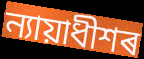
ন্যায়াধীশৰ